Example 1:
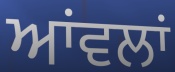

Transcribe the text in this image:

ਆਂਵਲਾਂ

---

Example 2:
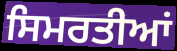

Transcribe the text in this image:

ਸਿਮਰਤੀਆਂ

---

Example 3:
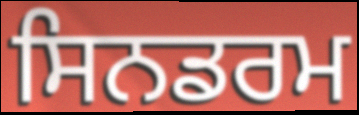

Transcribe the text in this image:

ਸਿਨਡਰਮ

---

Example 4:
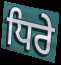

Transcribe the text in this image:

ਧਿਰੇ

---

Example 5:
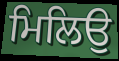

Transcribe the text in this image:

ਮਿਲਿਉ